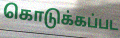
கொடுக்கப்பட